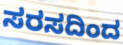
ಸರಸದಿಂದ